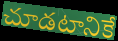
చూడటానికే